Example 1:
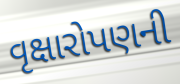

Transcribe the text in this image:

વૃક્ષારોપણની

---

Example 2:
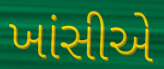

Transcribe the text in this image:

ખાંસીએ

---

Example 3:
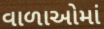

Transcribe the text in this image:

વાળાઓમાં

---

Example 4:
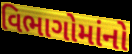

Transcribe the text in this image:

વિભાગોમાંનો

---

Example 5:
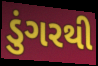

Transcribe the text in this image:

ડુંગરથી